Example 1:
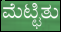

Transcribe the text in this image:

ಮೆಟ್ಟಿತು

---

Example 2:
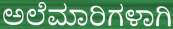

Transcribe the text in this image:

ಅಲೆಮಾರಿಗಳಾಗಿ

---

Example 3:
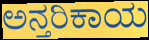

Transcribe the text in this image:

ಅನ್ತರಿಕಾಯ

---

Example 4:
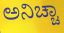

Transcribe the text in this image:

ಅನಿಚ್ಚಾ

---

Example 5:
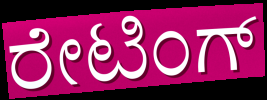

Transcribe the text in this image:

ರೇಟಿಂಗ್